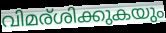
വിമര്ശിക്കുകയും